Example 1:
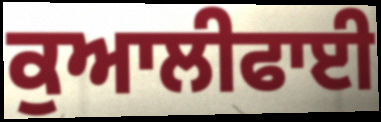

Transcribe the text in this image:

ਕੁਆਲੀਫਾਈ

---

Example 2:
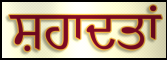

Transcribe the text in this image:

ਸ਼ਹਾਦਤਾਂ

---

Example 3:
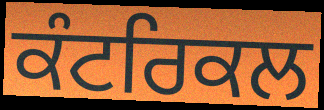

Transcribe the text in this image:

ਕੰਟਰਿਕਲ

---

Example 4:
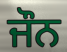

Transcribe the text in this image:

ਜੌਨ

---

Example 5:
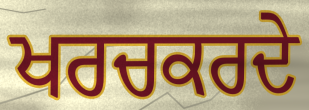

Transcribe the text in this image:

ਖਰਚਕਰਦੇ